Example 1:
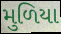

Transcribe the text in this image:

મુળિયા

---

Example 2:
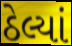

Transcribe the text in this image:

ઠેલ્યાં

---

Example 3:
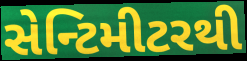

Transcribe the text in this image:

સેન્ટિમીટરથી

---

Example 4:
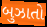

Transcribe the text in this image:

બુઝાતો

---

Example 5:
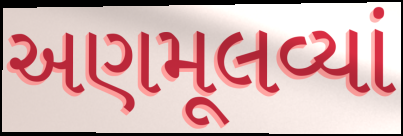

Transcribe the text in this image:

અણમૂલવ્યાં